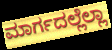
ಮಾರ್ಗದಲ್ಲೆಲ್ಲಾ